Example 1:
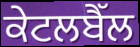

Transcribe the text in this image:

ਕੇਟਲਬੈੱਲ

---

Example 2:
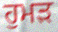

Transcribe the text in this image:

ਹੁਮੜ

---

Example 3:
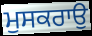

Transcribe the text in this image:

ਮੁਸਕਰਾਉ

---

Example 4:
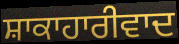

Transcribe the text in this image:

ਸ਼ਾਕਾਹਾਰੀਵਾਦ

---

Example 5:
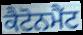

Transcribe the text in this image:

ਕੈਟੋਨਮੈਂਟ